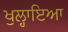
ਖੁਲ੍ਹਾਇਆ